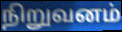
நிறுவனம்